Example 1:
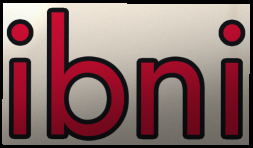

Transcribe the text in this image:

ibni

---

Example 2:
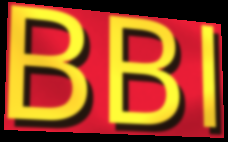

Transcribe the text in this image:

BBI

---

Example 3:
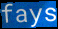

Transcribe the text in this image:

fays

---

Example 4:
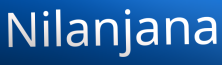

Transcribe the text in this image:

Nilanjana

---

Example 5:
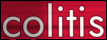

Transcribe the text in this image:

colitis